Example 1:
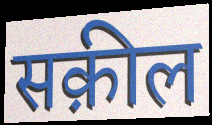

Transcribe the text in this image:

सक़ील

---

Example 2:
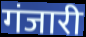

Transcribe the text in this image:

गंजारी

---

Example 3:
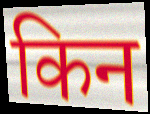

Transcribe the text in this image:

किन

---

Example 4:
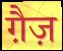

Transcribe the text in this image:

ग़ैज़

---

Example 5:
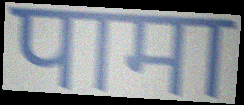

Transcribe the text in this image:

पामा